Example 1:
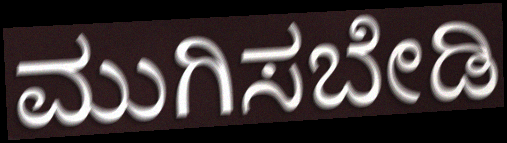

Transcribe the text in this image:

ಮುಗಿಸಬೇಡಿ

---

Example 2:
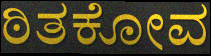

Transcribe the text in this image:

ಠಿತಕೋವ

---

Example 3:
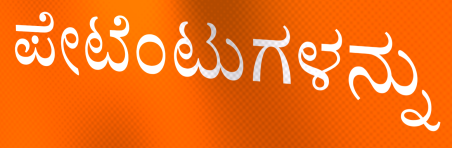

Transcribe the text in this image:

ಪೇಟೆಂಟುಗಳನ್ನು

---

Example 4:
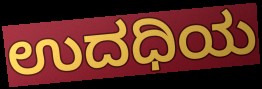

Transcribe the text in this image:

ಉದಧಿಯ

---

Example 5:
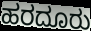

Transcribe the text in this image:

ಹರದೂರು